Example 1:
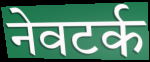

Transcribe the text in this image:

नेवटर्क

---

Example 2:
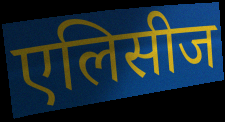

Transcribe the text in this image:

एलिसीज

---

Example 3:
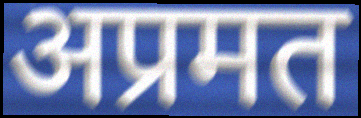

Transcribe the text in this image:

अप्रमत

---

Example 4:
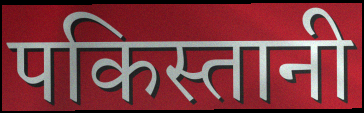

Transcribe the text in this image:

पकिस्तानी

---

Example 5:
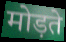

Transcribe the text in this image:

मोड़ते